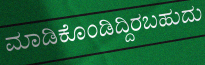
ಮಾಡಿಕೊಂಡಿದ್ದಿರಬಹುದು